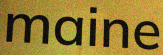
maine